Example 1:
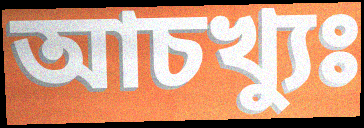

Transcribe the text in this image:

আচখ্যুঃ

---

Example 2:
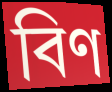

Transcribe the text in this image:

বিণ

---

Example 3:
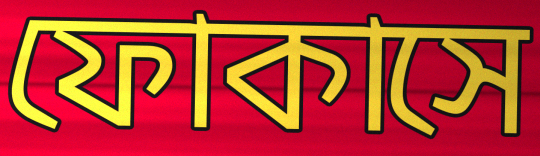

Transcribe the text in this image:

ফোকাসে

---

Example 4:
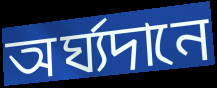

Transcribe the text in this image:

অর্ঘ্যদানে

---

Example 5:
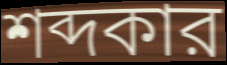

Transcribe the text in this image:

শব্দকার